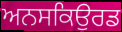
ਅਨਸਕਿਉਰਡ